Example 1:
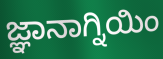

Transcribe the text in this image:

ಜ್ಞಾನಾಗ್ನಿಯಿಂ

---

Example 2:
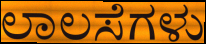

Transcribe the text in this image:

ಲಾಲಸೆಗಳು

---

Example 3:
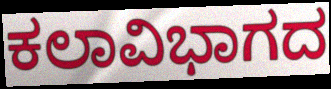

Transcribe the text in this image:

ಕಲಾವಿಭಾಗದ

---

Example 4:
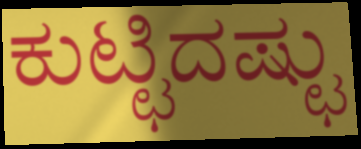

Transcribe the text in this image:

ಕುಟ್ಟಿದಷ್ಟು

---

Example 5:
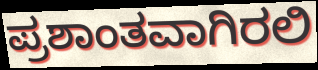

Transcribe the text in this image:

ಪ್ರಶಾಂತವಾಗಿರಲಿ